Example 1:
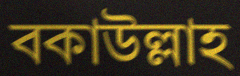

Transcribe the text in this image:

বকাউল্লাহ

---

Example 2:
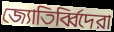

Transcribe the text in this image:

জ্যোতির্ব্বিদেরা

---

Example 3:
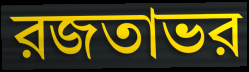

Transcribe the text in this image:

রজতাভর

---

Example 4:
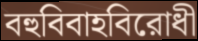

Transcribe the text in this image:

বহুবিবাহবিরোধী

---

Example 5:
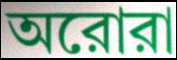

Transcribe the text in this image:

অরোরা